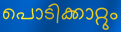
പൊടിക്കാറ്റും